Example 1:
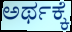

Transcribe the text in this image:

ಅರ್ಥಕ್ಕೆ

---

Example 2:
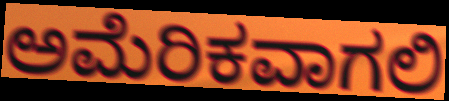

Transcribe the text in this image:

ಅಮೆರಿಕವಾಗಲಿ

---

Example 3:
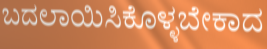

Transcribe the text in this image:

ಬದಲಾಯಿಸಿಕೊಳ್ಳಬೇಕಾದ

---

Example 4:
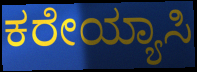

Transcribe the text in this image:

ಕರೇಯ್ಯಾಸಿ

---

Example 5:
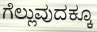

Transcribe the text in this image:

ಗೆಲ್ಲುವುದಕ್ಕೂ